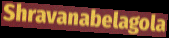
Shravanabelagola